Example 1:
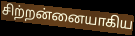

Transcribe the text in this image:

சிற்றன்னையாகிய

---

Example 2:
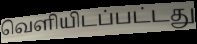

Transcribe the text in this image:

வெளியிடப்பட்டது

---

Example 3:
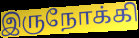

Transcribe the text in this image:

இருநோக்கி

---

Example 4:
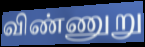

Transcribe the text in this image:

விண்ணுறு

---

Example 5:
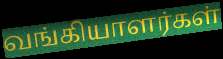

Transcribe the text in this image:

வங்கியாளர்கள்